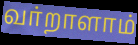
வர்றாளாம்